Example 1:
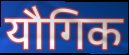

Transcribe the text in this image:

यौगिक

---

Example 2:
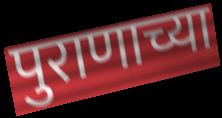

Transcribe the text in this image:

पुराणाच्या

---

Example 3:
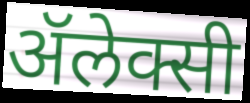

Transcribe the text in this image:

ॲलेक्सी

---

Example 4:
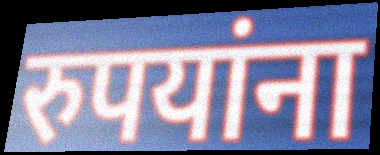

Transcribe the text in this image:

रुपयांना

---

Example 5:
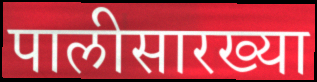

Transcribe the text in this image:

पालीसारख्या